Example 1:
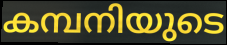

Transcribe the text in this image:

കമ്പനിയുടെ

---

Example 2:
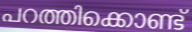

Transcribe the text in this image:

പറത്തിക്കൊണ്ട്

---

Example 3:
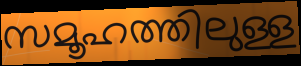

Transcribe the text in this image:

സമൂഹത്തിലുള്ള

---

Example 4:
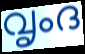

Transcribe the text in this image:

വൃംദ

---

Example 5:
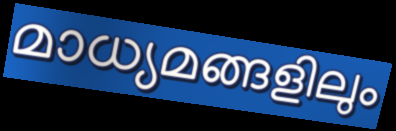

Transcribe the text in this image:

മാധ്യമങ്ങളിലും